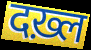
दख़्ल